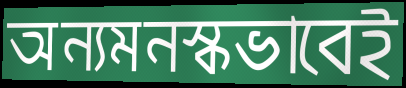
অন্যমনস্কভাবেই